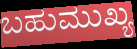
ಬಹುಮುಖ್ಯ